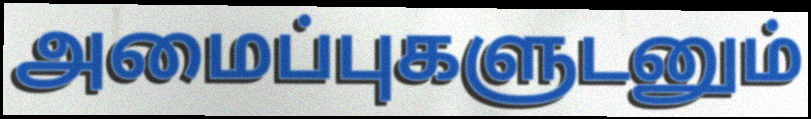
அமைப்புகளுடனும்